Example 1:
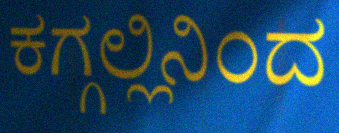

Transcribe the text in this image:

ಕಗ್ಗಲ್ಲಿನಿಂದ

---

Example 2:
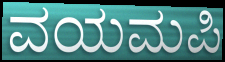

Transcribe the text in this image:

ವಯಮಪಿ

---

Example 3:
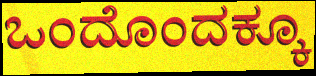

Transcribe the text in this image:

ಒಂದೊಂದಕ್ಕೂ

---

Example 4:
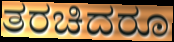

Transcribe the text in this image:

ತರಚಿದರೂ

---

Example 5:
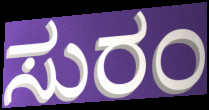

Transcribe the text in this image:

ಸುರಂ